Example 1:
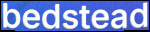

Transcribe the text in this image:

bedstead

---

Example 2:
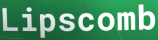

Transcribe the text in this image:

Lipscomb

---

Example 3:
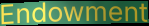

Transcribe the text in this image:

Endowment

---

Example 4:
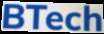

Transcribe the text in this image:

BTech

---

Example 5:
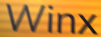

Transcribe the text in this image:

Winx